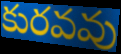
కురవవు